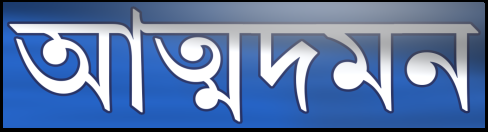
আত্মদমন